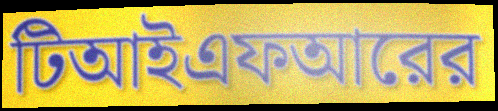
টিআইএফআরের